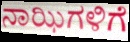
ನಾಝಿಗಳಿಗೆ